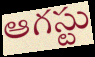
ఆగస్టు